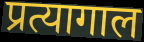
प्रत्यागाल